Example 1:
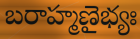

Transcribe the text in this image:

బరాహ్మణైభ్యః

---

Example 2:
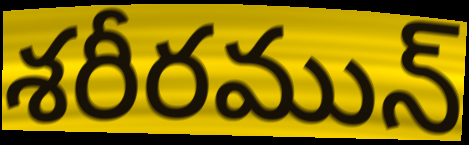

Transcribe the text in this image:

శరీరమున్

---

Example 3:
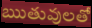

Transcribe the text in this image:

ఋతువులతో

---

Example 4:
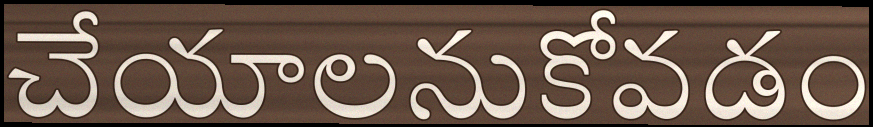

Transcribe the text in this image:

చేయాలనుకోవడం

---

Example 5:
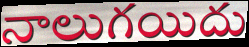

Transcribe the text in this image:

నాలుగయిదు